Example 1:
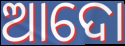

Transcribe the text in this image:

ଆଦୋ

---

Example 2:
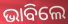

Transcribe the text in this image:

ଭାବିଲେ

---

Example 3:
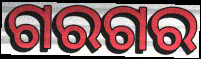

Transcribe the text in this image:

ଗରଗର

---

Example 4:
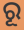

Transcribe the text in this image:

ରୂ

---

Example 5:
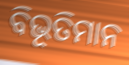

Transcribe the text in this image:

ବିଭୂତିମାନ